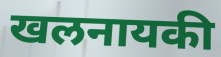
खलनायकी